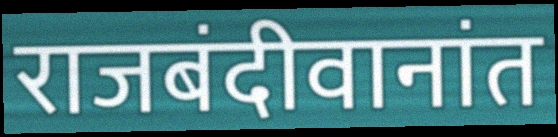
राजबंदीवानांत